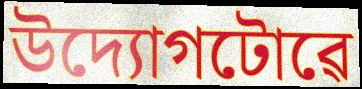
উদ্যোগটোৱে